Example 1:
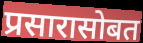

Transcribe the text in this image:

प्रसारासोबत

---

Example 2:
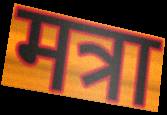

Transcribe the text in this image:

मत्रा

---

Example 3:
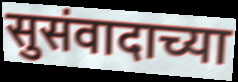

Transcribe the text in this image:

सुसंवादाच्या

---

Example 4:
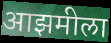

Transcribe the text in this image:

आझमीला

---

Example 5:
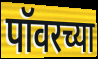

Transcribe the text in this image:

पॉवरच्या